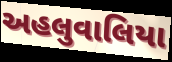
અહલુવાલિયા